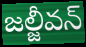
జల్జీవన్